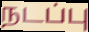
நடப்பு